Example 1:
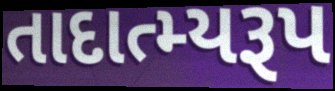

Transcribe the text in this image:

તાદાત્મ્યરૂપ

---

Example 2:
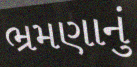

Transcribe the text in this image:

ભ્રમણાનું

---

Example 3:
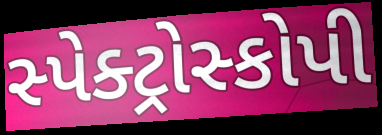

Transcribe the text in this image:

સ્પેક્ટ્રોસ્કોપી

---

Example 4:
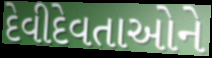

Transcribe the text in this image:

દેવીદેવતાઓને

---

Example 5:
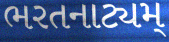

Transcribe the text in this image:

ભરતનાટ્યમ્